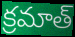
క్రమాత్